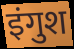
इंगुश